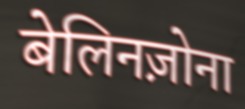
बेलिनज़ोना